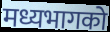
मध्यभागको